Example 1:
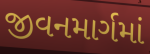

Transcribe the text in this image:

જીવનમાર્ગમાં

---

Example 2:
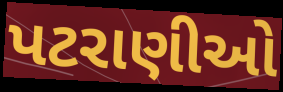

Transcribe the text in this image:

પટરાણીઓ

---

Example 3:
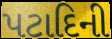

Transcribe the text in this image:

પટાદિની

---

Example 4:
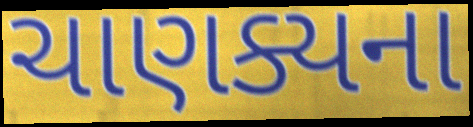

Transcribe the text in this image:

ચાણક્યના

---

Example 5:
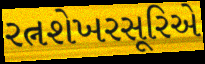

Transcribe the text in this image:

રત્નશેખરસૂરિએ